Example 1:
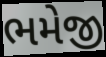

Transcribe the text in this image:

ભમેજી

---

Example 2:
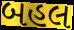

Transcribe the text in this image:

બહલ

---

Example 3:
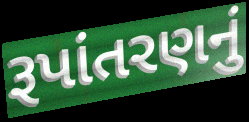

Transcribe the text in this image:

રૂપાંતરણનું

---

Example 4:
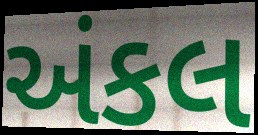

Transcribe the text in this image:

અંકલ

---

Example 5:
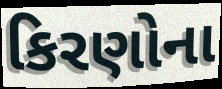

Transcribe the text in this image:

કિરણોના